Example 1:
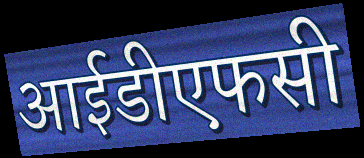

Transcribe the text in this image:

आईडीएफसी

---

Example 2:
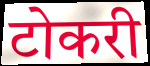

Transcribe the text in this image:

टोकरी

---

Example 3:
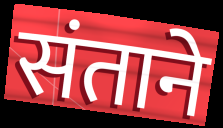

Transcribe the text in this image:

संताने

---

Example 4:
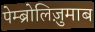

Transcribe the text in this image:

पेम्ब्रोलिज़ुमाब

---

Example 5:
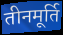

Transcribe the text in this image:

तीनमूर्ति